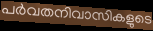
പർവതനിവാസികളുടെ